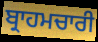
ਬ੍ਰਾਹਮਚਾਰੀ